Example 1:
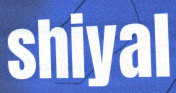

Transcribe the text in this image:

shiyal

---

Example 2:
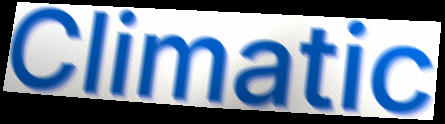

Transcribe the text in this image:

Climatic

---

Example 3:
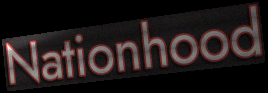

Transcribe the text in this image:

Nationhood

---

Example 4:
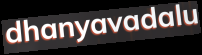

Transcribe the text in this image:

dhanyavadalu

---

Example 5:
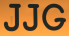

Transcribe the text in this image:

JJG